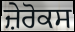
ਜ਼ੇਰੋਕਸ